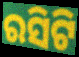
ରସିଟି